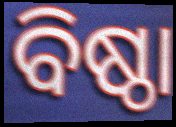
ବିଷ୍ଠା